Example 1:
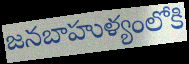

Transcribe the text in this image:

జనబాహుళ్యంలోకి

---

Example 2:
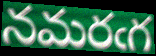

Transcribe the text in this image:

నమరఁగ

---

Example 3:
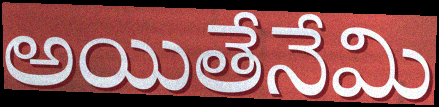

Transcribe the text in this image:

అయితేనేమి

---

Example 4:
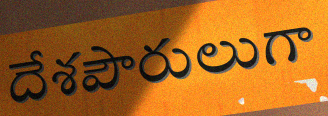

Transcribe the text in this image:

దేశపౌరులుగా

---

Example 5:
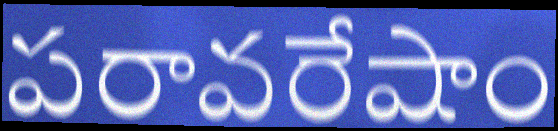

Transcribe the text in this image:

పరావరేషాం